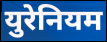
युरेनियम